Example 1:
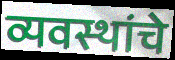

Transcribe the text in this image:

व्यवस्थांचे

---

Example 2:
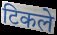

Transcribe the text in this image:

टिकले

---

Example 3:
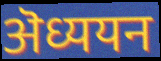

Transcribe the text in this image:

ऄध्ययन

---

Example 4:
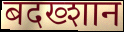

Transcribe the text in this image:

बदख्शान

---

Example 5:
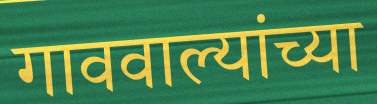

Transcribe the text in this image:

गाववाल्यांच्या